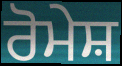
ਰੋਮੇਸ਼